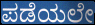
ಪಡೆಯಲೇ